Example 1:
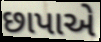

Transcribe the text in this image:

છાપાએ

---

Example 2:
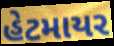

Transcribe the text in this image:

હેટમાયર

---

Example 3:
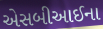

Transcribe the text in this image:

એસબીઆઈના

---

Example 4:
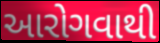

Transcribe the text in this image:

આરોગવાથી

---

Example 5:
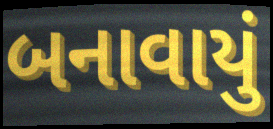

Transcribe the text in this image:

બનાવાયું